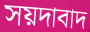
সয়দাবাদ